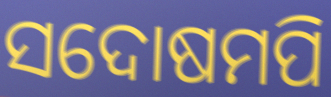
ସଦୋଷମପି